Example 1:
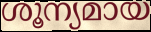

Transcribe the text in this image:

ശൂന്യമായ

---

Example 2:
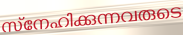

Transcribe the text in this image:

സ്‌നേഹിക്കുന്നവരുടെ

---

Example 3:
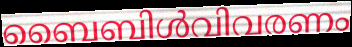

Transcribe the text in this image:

ബൈബിൾവിവരണം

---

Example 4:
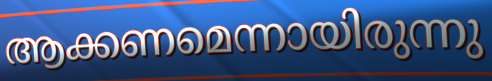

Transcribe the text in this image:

ആക്കണമെന്നായിരുന്നു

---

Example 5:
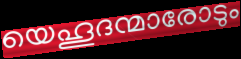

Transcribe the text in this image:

യെഹൂദന്മാരോടും